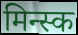
मिन्स्क